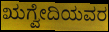
ಋಗ್ವೇದಿಯವರ